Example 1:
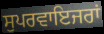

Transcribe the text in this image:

ਸੁਪਰਵਾਇਜਰਾਂ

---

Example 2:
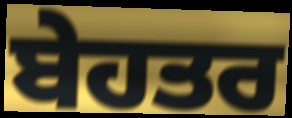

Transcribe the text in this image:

ਬੇਹਤਰ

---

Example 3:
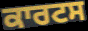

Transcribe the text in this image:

ਕਾਰਟਸ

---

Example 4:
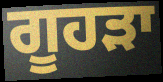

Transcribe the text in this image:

ਗੂਹੜਾ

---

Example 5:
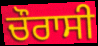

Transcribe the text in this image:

ਚੌਰਾਸੀ